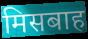
मिसबाह